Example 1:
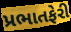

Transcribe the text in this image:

પ્રભાતફેરી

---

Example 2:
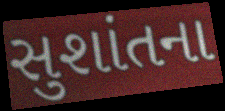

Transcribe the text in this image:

સુશાંતના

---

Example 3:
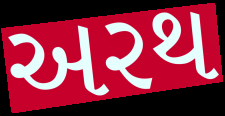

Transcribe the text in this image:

અરથ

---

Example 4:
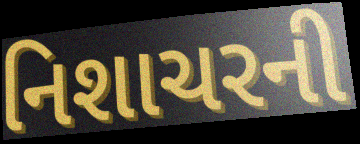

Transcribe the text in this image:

નિશાચરની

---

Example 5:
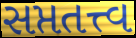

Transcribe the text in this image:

સપ્તતત્ત્વ